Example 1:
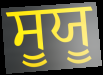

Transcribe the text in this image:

ਸੂਯੂ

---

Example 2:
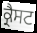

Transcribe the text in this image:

ਕ੍ਰੈਸਟ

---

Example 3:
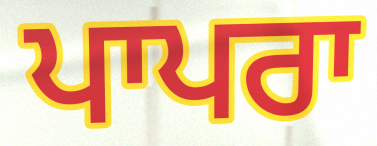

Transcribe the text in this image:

ਪਾਪਰਾ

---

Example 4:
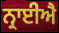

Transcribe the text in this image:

ਨ੍ਰਾਈਐ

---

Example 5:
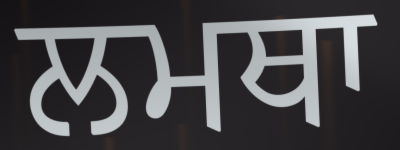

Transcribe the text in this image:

ਲਮਥਾ